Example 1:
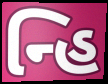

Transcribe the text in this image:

ન્હિ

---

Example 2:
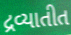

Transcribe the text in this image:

દ્રવ્યાતીત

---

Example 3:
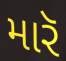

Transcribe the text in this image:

મારૅ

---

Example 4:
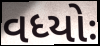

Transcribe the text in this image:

વધ્યોઃ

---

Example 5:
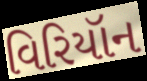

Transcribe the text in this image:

વિરિયૉન